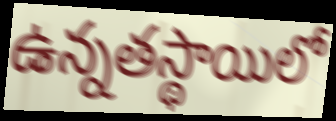
ఉన్నతస్థాయిలో